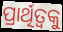
ପ୍ରାର୍ଥିତ୍ୱକୁ